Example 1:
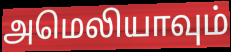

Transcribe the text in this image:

அமெலியாவும்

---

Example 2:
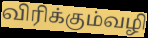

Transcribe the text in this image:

விரிக்கும்வழி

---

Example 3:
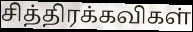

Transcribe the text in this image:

சித்திரக்கவிகள்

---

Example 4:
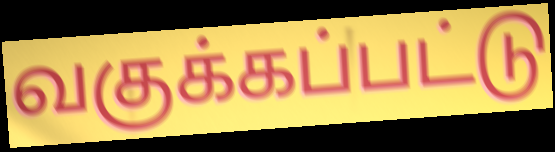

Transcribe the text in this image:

வகுக்கப்பட்டு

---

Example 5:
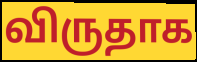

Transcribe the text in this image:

விருதாக